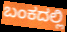
ಬಂಕದಲ್ಲಿ